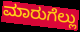
ಮಾರುಗೆಲ್ಲು